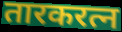
तारकरत्न